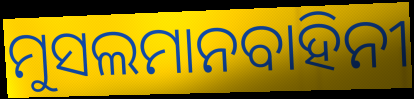
ମୁସଲମାନବାହିନୀ